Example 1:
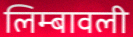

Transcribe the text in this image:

लिम्बावली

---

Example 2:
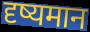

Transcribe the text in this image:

दृष्यमान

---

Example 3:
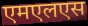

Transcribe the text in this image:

एमएलएस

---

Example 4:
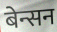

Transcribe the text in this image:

बेन्सन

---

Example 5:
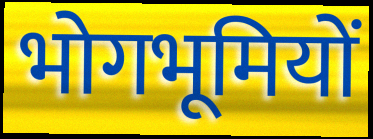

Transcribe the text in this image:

भोगभूमियों